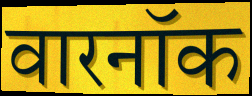
वारनॉक